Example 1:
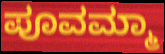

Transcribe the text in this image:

ಪೂವಮ್ಮಾ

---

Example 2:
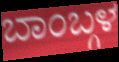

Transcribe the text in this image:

ಬಾಂಬ್ಗಳ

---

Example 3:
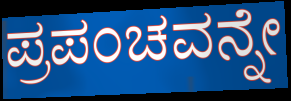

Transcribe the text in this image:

ಪ್ರಪಂಚವನ್ನೇ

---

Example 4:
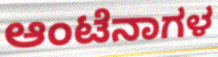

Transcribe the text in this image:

ಆಂಟೆನಾಗಳ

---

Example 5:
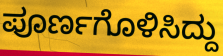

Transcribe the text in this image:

ಪೂರ್ಣಗೊಳಿಸಿದ್ದು